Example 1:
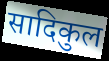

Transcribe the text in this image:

सादिकुल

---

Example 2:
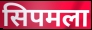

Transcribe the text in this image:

सिपमला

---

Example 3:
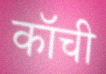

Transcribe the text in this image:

कॉची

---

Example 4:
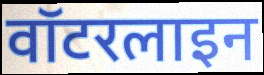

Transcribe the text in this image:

वॉटरलाइन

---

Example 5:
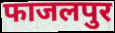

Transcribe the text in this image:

फाजलपुर